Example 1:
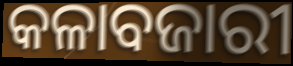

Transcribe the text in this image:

କଳାବଜାରୀ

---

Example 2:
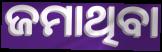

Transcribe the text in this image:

ଜମାଥିବା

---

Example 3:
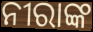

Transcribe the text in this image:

ନୀରାଙ୍କ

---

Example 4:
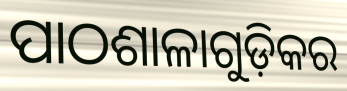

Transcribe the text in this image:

ପାଠଶାଳାଗୁଡ଼ିକର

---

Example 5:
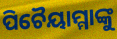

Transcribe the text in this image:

ପିଚୈୟାମ୍ମାଙ୍କୁ